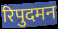
रिपुदमन